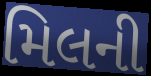
મિલની